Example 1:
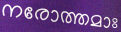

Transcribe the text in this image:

നരോത്തമാഃ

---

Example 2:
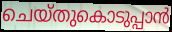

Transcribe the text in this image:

ചെയ്തുകൊടുപ്പാൻ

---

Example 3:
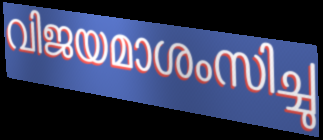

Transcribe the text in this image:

വിജയമാശംസിച്ചു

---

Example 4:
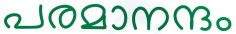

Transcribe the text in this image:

പരമാനന്ദം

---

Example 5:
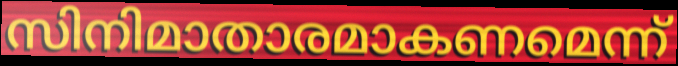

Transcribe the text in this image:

സിനിമാതാരമാകണമെന്ന്